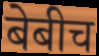
बेबीच